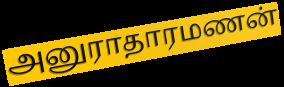
அனுராதாரமணன்